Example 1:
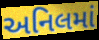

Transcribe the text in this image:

અનિલમાં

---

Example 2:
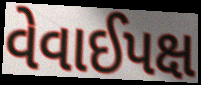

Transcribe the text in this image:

વેવાઈપક્ષ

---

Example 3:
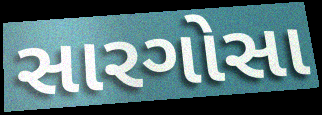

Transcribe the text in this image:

સારગોસા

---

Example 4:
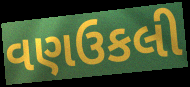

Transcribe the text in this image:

વણઉકલી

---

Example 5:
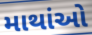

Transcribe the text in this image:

માથાંઓ